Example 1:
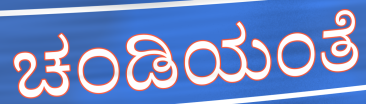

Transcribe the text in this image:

ಚಂಡಿಯಂತೆ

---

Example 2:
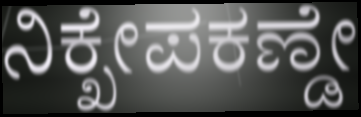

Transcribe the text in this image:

ನಿಕ್ಖೇಪಕಣ್ಡೇ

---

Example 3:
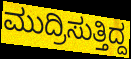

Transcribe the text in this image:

ಮುದ್ರಿಸುತ್ತಿದ್ದ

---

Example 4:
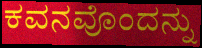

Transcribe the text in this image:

ಕವನವೊಂದನ್ನು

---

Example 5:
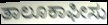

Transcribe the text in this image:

ತಾಲೂಕಾಫೀಸು